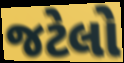
જટેલો